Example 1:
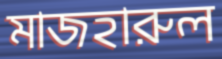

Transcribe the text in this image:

মাজহারুল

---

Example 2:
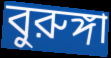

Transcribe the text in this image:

বুরুঙ্গা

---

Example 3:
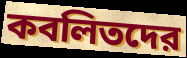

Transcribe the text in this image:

কবলিতদের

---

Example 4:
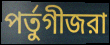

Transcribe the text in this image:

পর্তুগীজরা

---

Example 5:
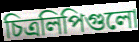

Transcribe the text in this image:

চিত্রলিপিগুলো